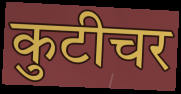
कुटीचर